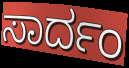
ಸಾರ್ದಂ